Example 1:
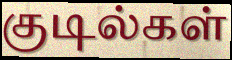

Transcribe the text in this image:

குடில்கள்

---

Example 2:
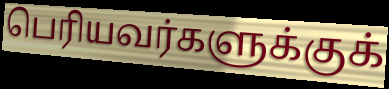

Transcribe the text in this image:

பெரியவர்களுக்குக்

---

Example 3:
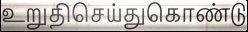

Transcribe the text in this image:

உறுதிசெய்துகொண்டு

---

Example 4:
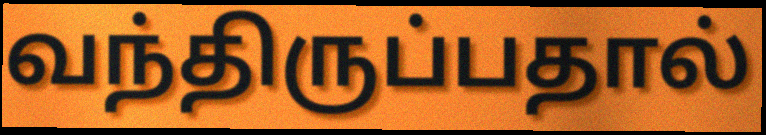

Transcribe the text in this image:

வந்திருப்பதால்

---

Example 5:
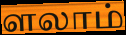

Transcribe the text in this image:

ளலாம்